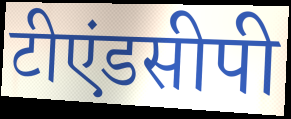
टीएंडसीपी